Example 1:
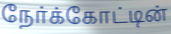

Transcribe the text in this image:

நேர்க்கோட்டின்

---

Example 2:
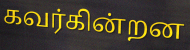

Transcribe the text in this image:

கவர்கின்றன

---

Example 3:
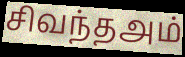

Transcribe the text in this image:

சிவந்தஅம்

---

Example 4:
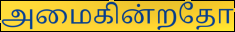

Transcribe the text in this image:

அமைகின்றதோ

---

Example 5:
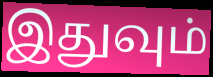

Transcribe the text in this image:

இதுவும்